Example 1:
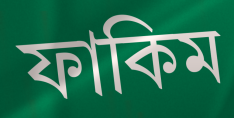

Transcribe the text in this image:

ফাকিম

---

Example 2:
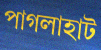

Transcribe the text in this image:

পাগলাহাট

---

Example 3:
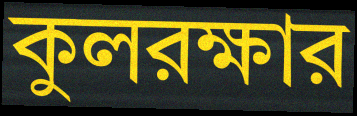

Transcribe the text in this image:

কুলরক্ষার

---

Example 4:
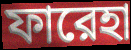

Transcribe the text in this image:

ফারেহা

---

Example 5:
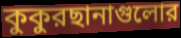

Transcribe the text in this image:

কুকুরছানাগুলোর